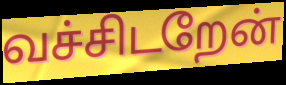
வச்சிடறேன்